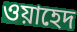
ওয়াহেদ